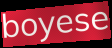
boyese